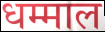
धम्माल